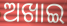
ଅଖାଇ